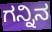
ಗನ್ನಿನ